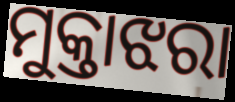
ମୁକ୍ତାଝରା